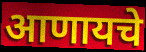
आणायचे